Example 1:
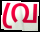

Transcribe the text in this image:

വ്ര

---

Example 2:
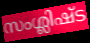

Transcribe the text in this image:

സംശ്ലിഷ്ട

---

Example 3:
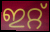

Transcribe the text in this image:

ഇറ്റ്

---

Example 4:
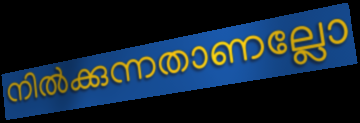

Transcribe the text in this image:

നിൽക്കുന്നതാണല്ലോ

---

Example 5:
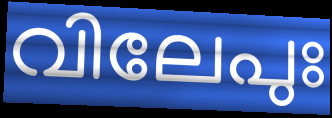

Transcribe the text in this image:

വിലേപുഃ